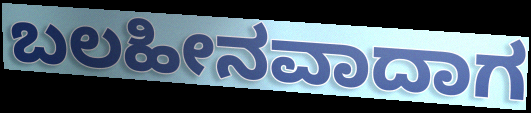
ಬಲಹೀನವಾದಾಗ